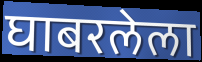
घाबरलेला